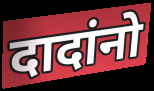
दादांनो